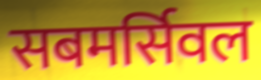
सबमर्सिवल